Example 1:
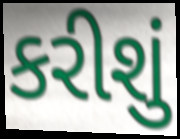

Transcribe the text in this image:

કરીશું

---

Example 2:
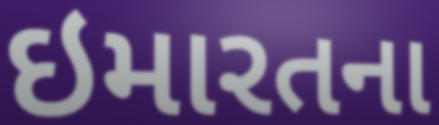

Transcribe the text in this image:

ઇમારતના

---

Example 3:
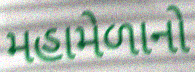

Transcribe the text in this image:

મહામેળાનો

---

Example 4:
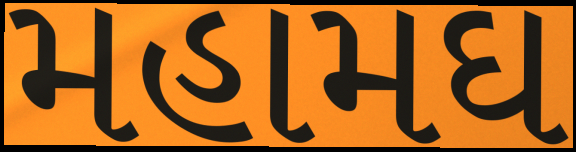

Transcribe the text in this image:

મહામઘ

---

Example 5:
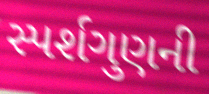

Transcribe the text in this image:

સ્પર્શગુણની